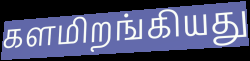
களமிறங்கியது